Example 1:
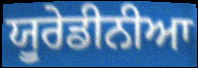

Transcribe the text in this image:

ਯੂਰੇਡੀਨੀਆ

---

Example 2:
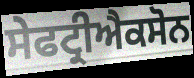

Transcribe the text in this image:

ਸੇਫਟ੍ਰੀਐਕਸੋਨ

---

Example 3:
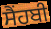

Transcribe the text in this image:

ਸੈਂਹਬੀ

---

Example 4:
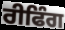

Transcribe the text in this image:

ਰੀਫਿੰਗ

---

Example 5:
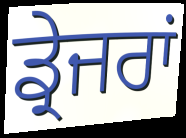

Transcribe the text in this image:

ਡ੍ਰੇਜਰਾਂ